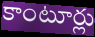
కాంటూర్లు